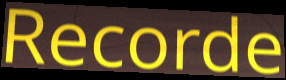
Recorde